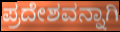
ಪ್ರದೇಶವನ್ನಾಗಿ